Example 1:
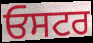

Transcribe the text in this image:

ਓਸਟਰ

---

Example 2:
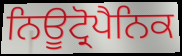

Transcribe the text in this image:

ਨਿਊਟ੍ਰੋਪੈਨਿਕ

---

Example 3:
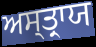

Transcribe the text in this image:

ਅਸ੍ਤ੍ਰਾਯ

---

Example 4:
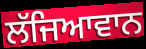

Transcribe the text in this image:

ਲੱਜਿਆਵਾਨ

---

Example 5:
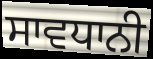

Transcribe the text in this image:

ਸਾਵਧਾਨੀ